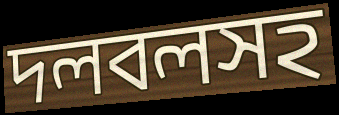
দলবলসহ